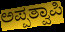
ಅಪ್ಪತ್ವಾಪಿ